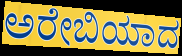
ಅರೇಬಿಯಾದ